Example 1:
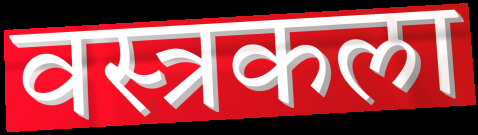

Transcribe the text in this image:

वस्त्रकला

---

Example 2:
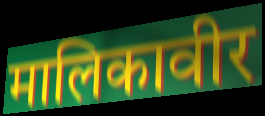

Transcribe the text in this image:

मालिकावीर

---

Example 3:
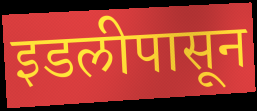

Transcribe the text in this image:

इडलीपासून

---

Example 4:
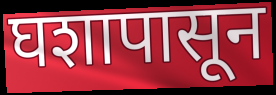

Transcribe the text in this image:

घशापासून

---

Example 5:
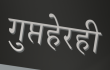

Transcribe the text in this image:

गुप्तहेरही